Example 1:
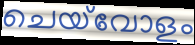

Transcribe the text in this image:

ചെയ്‌വോളം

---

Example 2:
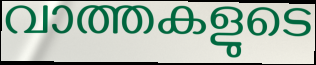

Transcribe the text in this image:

വാത്തകളുടെ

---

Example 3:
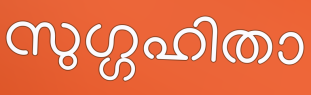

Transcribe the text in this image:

സുഗ്ഗഹിതാ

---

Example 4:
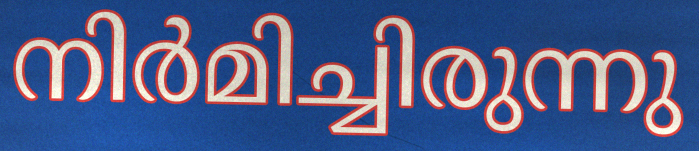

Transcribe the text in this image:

നിർമിച്ചിരുന്നു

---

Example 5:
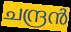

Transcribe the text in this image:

ചന്ദ്രൻ